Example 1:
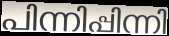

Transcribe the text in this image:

പിന്നിപ്പിന്നി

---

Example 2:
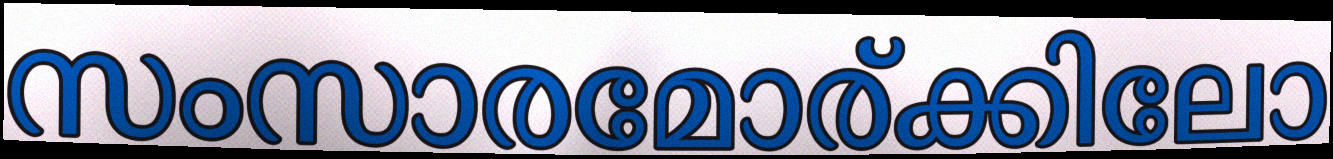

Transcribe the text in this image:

സംസാരമോര്ക്കിലോ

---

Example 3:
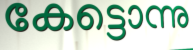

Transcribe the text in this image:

കേട്ടൊന്നു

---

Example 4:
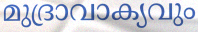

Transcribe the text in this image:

മുദ്രാവാക്യവും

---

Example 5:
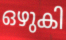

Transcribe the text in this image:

ഒഴുകി